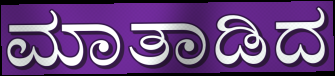
ಮಾತಾಡಿದ